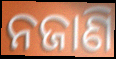
ନଜାଣି